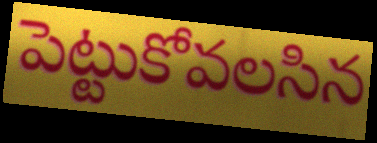
పెట్టుకోవలసిన